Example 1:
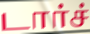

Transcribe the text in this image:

டார்ச்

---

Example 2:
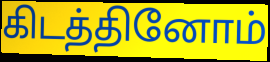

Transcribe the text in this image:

கிடத்தினோம்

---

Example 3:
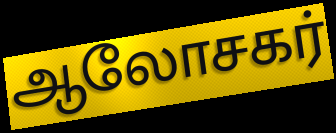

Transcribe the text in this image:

ஆலோசகர்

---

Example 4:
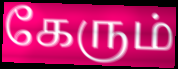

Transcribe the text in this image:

கேரும்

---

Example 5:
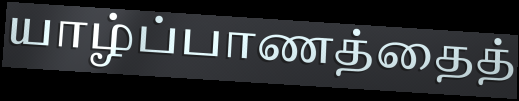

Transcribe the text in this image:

யாழ்ப்பாணத்தைத்